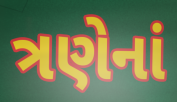
ત્રણેનાં